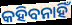
କହିବନାହିଁ